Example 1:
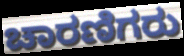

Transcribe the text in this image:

ಚಾರಣಿಗರು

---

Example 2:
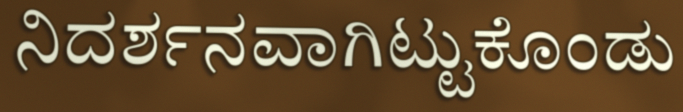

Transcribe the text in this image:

ನಿದರ್ಶನವಾಗಿಟ್ಟುಕೊಂಡು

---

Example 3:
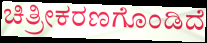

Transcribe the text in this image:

ಚಿತ್ರೀಕರಣಗೊಂಡಿದೆ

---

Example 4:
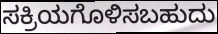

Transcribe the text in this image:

ಸಕ್ರಿಯಗೊಳಿಸಬಹುದು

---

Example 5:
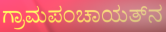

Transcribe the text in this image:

ಗ್ರಾಮಪಂಚಾಯತ್‌ನ